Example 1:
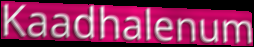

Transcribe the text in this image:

Kaadhalenum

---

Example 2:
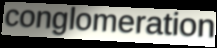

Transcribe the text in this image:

conglomeration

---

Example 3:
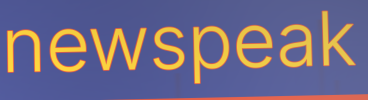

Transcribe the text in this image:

newspeak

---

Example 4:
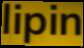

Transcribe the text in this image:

lipin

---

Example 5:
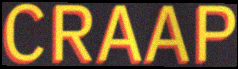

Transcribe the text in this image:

CRAAP